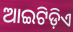
ଆଇଟିଡ଼ିଏ